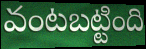
వంటబట్టింది